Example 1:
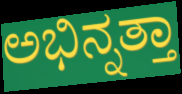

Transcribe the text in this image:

ಅಭಿನ್ನತ್ತಾ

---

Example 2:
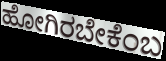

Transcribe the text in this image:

ಹೋಗಿರಬೇಕೆಂಬ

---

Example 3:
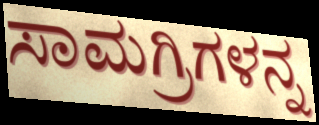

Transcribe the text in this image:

ಸಾಮಗ್ರಿಗಳನ್ನ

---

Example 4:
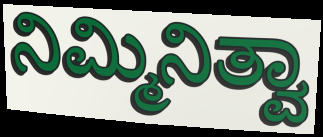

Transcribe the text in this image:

ನಿಮ್ಮಿನಿತ್ವಾ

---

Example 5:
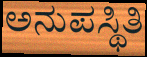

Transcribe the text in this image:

ಅನುಪಸ್ಥಿತಿ